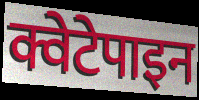
क्वेटेपाइन